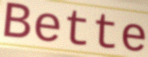
Bette